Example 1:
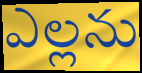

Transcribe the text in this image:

ఎల్లను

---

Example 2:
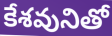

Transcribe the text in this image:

కేశవునితో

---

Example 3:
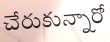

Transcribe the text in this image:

చేరుకున్నారో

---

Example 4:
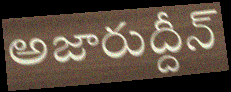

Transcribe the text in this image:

అజారుద్దీన్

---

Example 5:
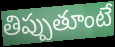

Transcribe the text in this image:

తిప్పుతూంటే